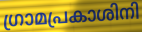
ഗ്രാമപ്രകാശിനി